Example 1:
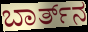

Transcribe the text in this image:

ಬಾರ್ತ್‌ನ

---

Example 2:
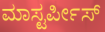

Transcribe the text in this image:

ಮಾಸ್ಟರ್ಪೀಸ್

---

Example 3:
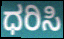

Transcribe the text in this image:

ಧರಿಸಿ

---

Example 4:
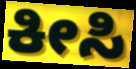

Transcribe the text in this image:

ಕೀಸಿ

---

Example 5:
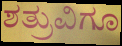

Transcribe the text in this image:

ಶತ್ರುವಿಗೂ